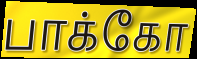
பாக்கோ